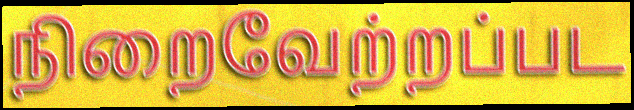
நிறைவேற்றப்பட